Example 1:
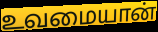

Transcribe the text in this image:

உவமையான்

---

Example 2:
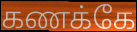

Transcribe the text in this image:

கணக்கே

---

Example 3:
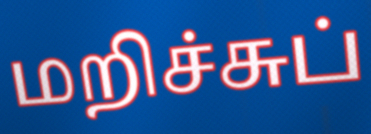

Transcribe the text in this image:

மறிச்சுப்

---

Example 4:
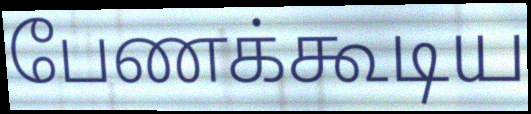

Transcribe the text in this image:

பேணக்கூடிய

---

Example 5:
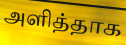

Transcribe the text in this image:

அளித்தாக